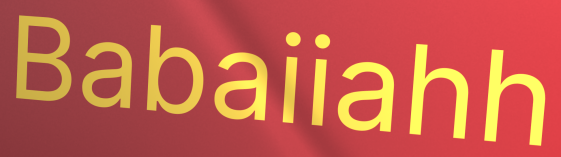
Babaiiahh